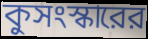
কুসংস্কারের